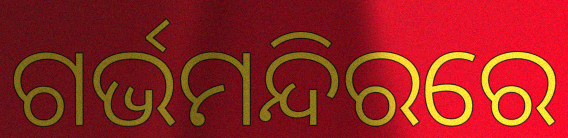
ଗର୍ଭମନ୍ଦିରରେ